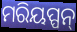
ମରିୟପ୍ପନ୍